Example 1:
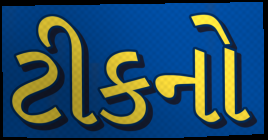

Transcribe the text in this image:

ટીકનો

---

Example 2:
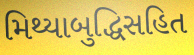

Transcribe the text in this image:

મિથ્યાબુદ્ધિસહિત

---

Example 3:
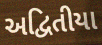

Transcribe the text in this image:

અદ્વિતીયા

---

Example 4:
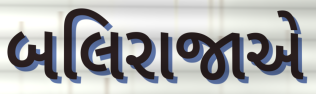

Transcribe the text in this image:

બલિરાજાએ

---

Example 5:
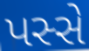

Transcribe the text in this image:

પસ્સે